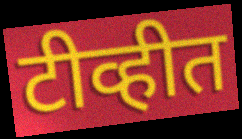
टीव्हीत